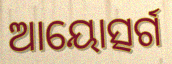
ଆୟୋତ୍ସର୍ଗ